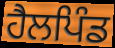
ਹੈਲਪਿੰਡ